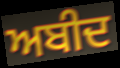
ਅਬੀਦ